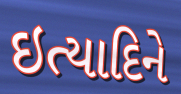
ઇત્‍યાદિને